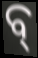
ବ୍